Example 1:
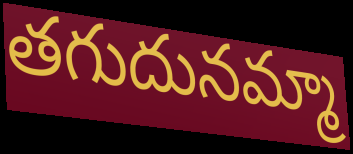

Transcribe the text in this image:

తగుదునమ్మా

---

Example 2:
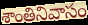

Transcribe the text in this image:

శాంతినివాసం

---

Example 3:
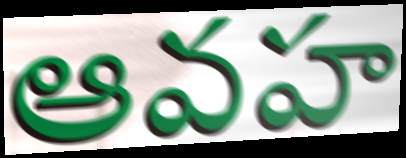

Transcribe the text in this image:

ఆవహ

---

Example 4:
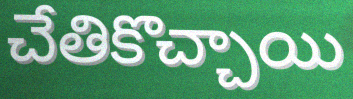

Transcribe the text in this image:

చేతికొచ్చాయి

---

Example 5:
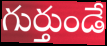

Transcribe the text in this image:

గుర్తుండే